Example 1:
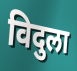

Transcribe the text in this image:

विदुला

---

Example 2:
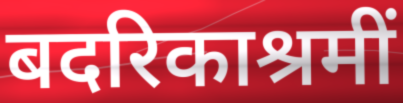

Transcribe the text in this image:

बदरिकाश्रमीं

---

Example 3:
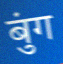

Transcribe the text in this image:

बुंग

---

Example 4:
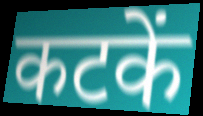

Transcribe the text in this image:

कटकें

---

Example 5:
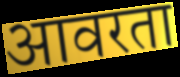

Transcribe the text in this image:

आवरता